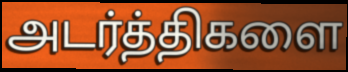
அடர்த்திகளை